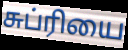
சுப்ரியை